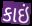
કાઇં